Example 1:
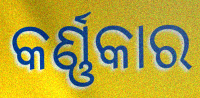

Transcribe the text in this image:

କର୍ଣ୍ଣକାର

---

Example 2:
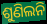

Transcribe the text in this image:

ଶୁଣିଲନି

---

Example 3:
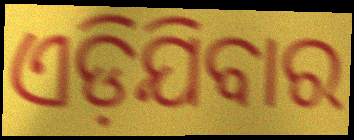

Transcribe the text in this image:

ଏଡ଼ିଯିବାର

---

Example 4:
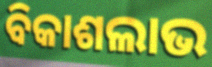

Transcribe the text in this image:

ବିକାଶଲାଭ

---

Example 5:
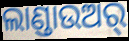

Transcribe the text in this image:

ଲାଣ୍ଡାଉଅର୍